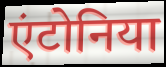
एंटोनिया